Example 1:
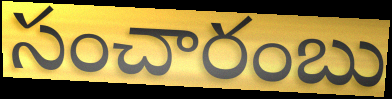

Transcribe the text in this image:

సంచారంబు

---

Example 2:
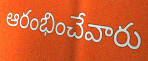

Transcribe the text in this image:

ఆరంభించేవారు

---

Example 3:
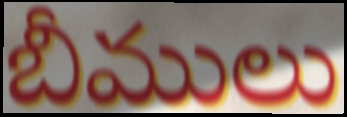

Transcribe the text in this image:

బీములు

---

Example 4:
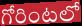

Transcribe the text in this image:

గోరింటలో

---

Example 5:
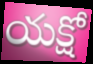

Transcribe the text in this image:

యక్షో